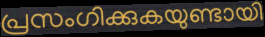
പ്രസംഗിക്കുകയുണ്ടായി